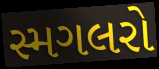
સ્મગલરો